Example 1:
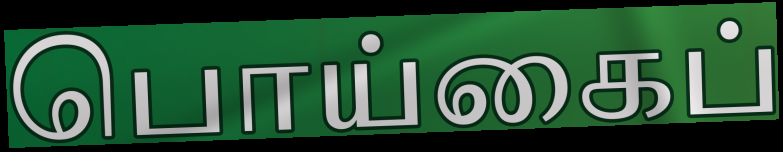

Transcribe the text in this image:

பொய்கைப்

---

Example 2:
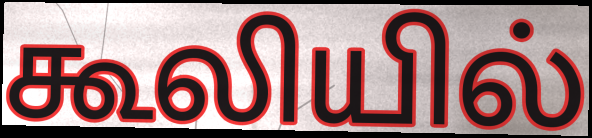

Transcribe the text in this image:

கூலியில்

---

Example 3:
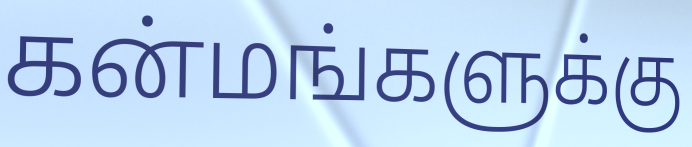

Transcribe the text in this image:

கன்மங்களுக்கு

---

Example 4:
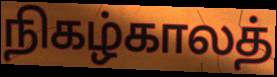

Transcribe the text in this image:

நிகழ்காலத்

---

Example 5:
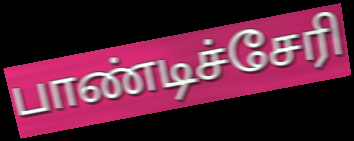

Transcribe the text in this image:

பாண்டிச்சேரி